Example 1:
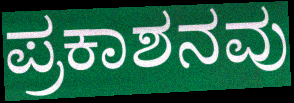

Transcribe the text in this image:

ಪ್ರಕಾಶನವು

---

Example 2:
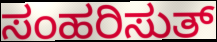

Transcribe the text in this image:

ಸಂಹರಿಸುತ್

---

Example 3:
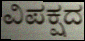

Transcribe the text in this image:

ವಿಪಕ್ಷದ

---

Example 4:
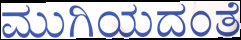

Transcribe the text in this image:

ಮುಗಿಯದಂತೆ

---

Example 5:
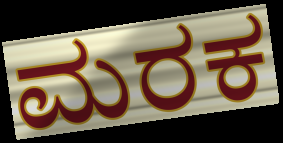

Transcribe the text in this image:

ಮರಕ